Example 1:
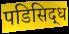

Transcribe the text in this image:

पडिसिद्ध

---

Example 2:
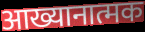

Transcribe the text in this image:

आख्यानात्मक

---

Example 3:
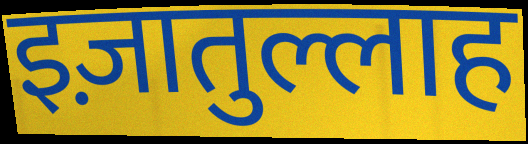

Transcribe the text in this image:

इज़ातुल्लाह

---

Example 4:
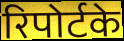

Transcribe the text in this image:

रिपोर्टके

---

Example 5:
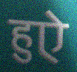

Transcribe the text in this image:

हुऐ